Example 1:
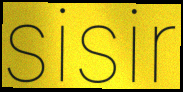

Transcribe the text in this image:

sisir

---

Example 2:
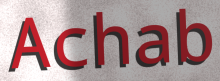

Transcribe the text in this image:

Achab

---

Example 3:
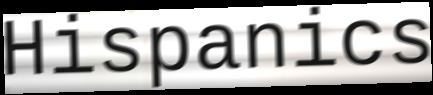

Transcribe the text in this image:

Hispanics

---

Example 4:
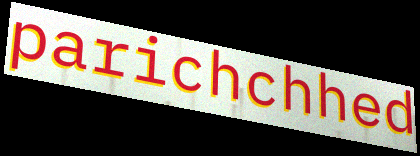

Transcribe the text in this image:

parichchhed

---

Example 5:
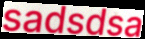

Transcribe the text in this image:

sadsdsa